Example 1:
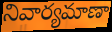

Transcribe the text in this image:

నివార్యమాణా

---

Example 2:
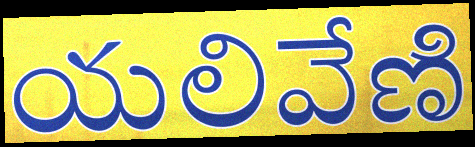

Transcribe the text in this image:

యలివేణి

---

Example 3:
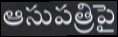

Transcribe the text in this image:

ఆసుపత్రిపై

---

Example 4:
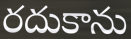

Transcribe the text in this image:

రదుకాను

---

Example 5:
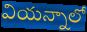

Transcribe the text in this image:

వియన్నాలో